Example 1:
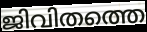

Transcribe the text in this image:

ജിവിതത്തെ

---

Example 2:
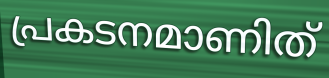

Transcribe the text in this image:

പ്രകടനമാണിത്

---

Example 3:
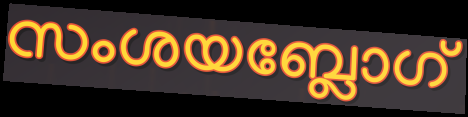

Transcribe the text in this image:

സംശയബ്ലോഗ്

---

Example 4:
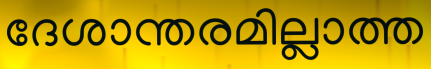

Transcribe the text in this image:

ദേശാന്തരമില്ലാത്ത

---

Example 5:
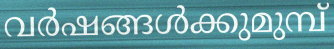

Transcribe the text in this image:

വർഷങ്ങൾക്കുമുമ്പ്